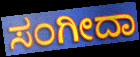
ಸಂಗೀದಾ